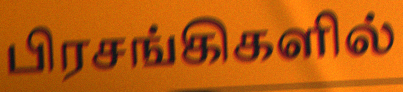
பிரசங்கிகளில்